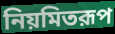
নিয়মিতরূপ